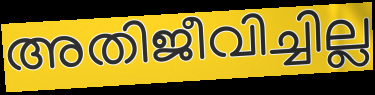
അതിജീവിച്ചില്ല